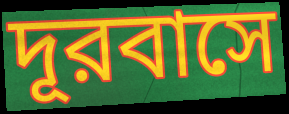
দূরবাসে